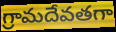
గ్రామదేవతగా